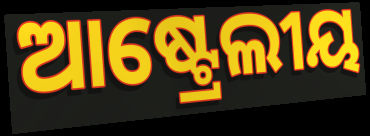
ଆଷ୍ଟ୍ରେଲୀୟ